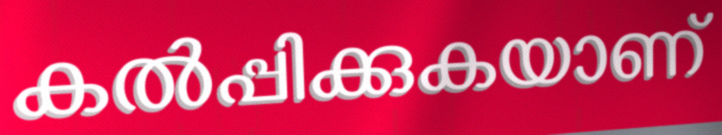
കൽപ്പിക്കുകയാണ്